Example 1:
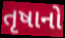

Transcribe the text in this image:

તૃષાનો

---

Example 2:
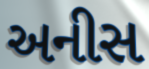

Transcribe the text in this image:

અનીસ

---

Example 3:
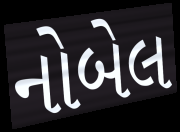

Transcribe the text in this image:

નોબેલ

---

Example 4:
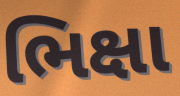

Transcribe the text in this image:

ભિક્ષા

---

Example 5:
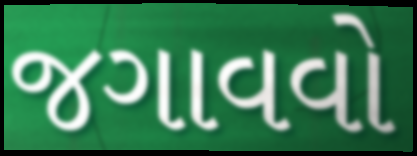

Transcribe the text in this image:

જગાવવો